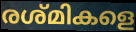
രശ്മികളെ